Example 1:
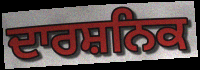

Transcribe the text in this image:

ਦਾਰਸ਼ਨਿਕ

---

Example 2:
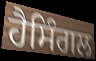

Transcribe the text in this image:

ਹੈਸਿੰਗਲ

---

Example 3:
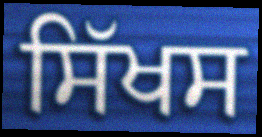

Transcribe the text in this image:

ਸਿੱਖਸ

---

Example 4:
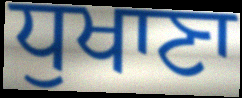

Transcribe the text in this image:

ਧੁਖਾਣਾ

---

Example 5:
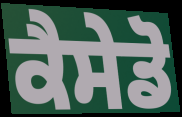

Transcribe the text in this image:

ਕੈਸੇਡੋ